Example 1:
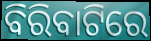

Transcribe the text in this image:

ବିରିବାଟିରେ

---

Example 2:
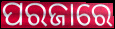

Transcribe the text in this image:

ପରଜାରେ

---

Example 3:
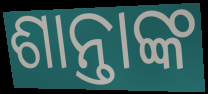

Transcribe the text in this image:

ଶାନ୍ତାଙ୍କ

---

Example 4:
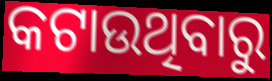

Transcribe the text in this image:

କଟାଉଥିବାରୁ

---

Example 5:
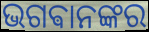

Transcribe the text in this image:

ଭଗଵାନଙ୍କର